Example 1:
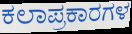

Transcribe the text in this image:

ಕಲಾಪ್ರಕಾರಗಳ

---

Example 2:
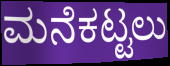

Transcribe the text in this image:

ಮನೆಕಟ್ಟಲು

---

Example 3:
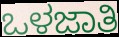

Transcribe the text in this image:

ಒಳಜಾತಿ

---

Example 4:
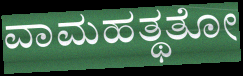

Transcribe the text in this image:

ವಾಮಹತ್ಥತೋ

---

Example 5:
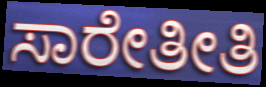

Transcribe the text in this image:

ಸಾರೇತೀತಿ